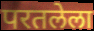
परतलेला